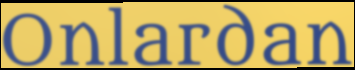
Onlardan